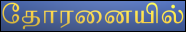
தோரனையில்